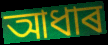
আধাৰ